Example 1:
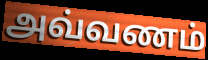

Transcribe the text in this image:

அவ்வணம்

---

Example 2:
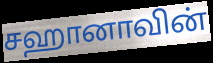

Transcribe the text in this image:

சஹானாவின்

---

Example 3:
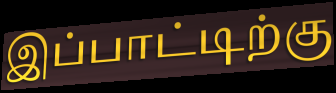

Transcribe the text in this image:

இப்பாட்டிற்கு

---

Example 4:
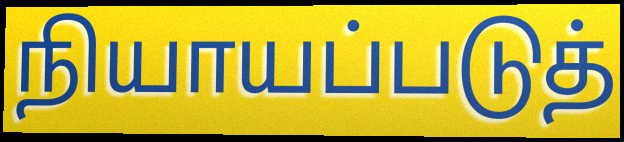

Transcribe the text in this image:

நியாயப்படுத்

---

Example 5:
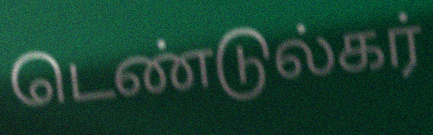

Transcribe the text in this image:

டெண்டுல்கர்